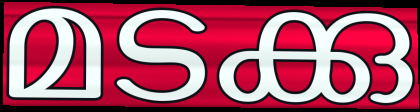
മടക്കു